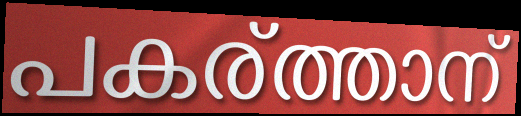
പകര്ത്താന്